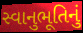
સ્વાનુભૂતિનું